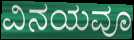
ವಿನಯವೂ